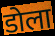
डोला